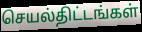
செயல்திட்டங்கள்